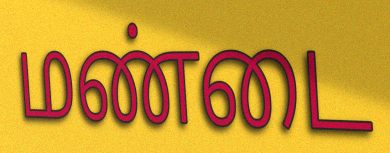
மண்டை